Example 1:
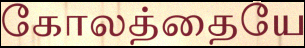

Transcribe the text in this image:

கோலத்தையே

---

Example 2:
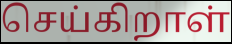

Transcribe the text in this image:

செய்கிறாள்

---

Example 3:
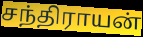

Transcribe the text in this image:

சந்திராயன்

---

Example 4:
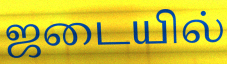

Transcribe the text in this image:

ஜடையில்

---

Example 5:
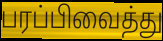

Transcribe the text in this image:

பரப்பிவைத்து